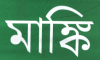
মাঙ্কি